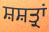
ਸ਼ਸ਼ਤ੍ਰਾਂ